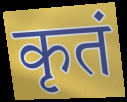
कृतं